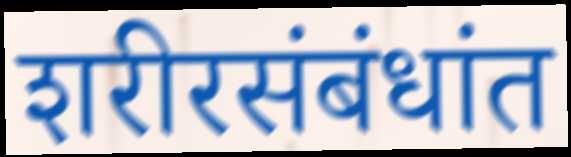
शरीरसंबंधांत